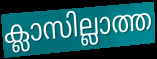
ക്ലാസില്ലാത്ത